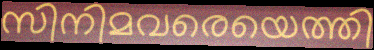
സിനിമവരെയെത്തി